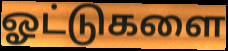
ஓட்டுகளை